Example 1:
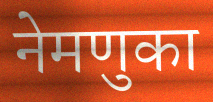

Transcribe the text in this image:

नेमणुका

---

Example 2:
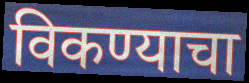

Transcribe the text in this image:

विकण्याचा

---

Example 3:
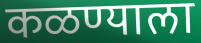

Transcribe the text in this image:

कळण्याला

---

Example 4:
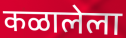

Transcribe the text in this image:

कळालेला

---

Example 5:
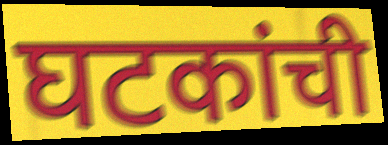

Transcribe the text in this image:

घटकांची